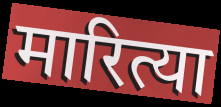
मारित्या